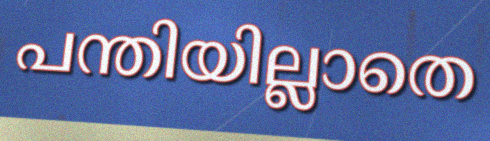
പന്തിയില്ലാതെ